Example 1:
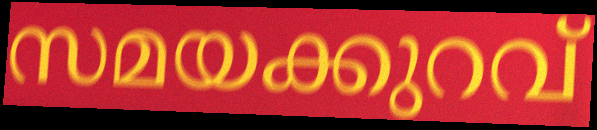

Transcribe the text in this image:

സമയക്കുറവ്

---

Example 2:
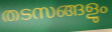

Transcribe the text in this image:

തടസങ്ങളും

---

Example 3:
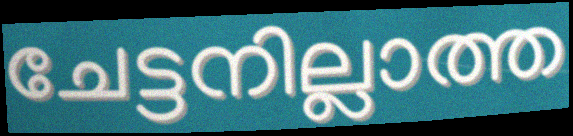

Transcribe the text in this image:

ചേട്ടനില്ലാത്ത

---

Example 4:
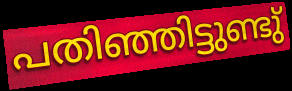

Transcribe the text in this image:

പതിഞ്ഞിട്ടുണ്ടു്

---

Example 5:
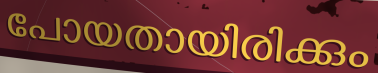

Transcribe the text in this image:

പോയതായിരിക്കും